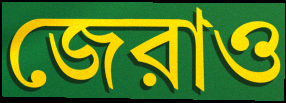
জেরাও